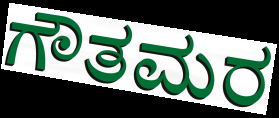
ಗೌತಮರ